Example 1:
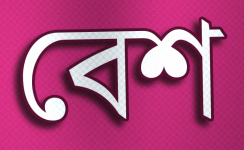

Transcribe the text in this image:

বেশ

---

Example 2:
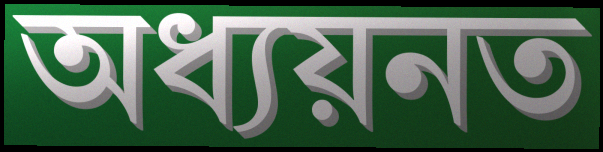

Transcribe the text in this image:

অধ্য়য়নত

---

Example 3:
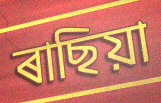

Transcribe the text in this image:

ৰাছিয়া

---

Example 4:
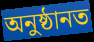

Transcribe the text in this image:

অনুষ্ঠানত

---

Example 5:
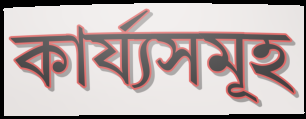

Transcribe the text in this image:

কাৰ্য্যসমূহ